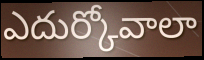
ఎదుర్కోవాలా